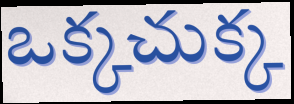
ఒక్కచుక్క